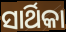
ସାର୍ଥିକା